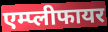
एम्प्लीफायर